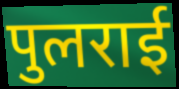
पुलराई